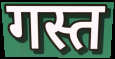
गस्त